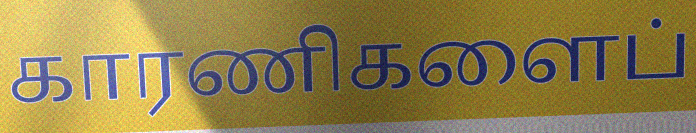
காரணிகளைப்